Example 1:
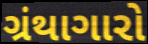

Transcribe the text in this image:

ગ્રંથાગારો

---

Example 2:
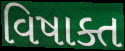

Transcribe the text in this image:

વિષાક્ત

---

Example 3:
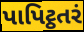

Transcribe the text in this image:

પાપિટ્ઠતરં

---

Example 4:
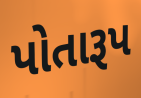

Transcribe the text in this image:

પોતારૂપ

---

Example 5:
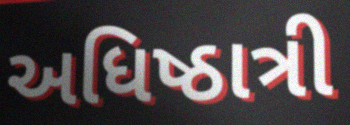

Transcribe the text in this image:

અધિષ્ઠાત્રી